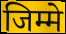
जिम्मे